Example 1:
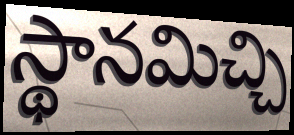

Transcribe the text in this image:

స్థానమిచ్చి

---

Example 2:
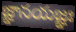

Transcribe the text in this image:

జ్ఞానయజ్ఞః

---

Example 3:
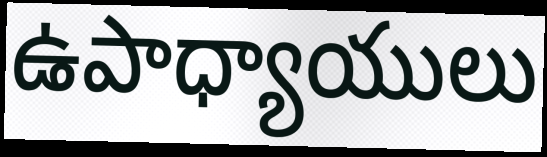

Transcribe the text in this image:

ఉపాధ్యాయులు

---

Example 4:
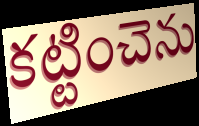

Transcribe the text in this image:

కట్టించెను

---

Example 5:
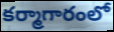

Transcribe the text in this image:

కర్మాగారంలో